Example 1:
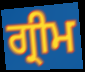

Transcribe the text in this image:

ਗ੍ਰੀਮ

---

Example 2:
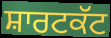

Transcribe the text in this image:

ਸ਼ਾਰਟਕੱਟ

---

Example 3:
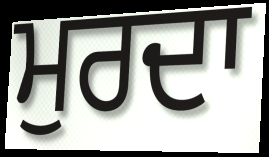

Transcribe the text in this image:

ਮੁਰਦਾ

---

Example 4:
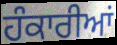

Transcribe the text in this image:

ਹੰਕਾਰੀਆਂ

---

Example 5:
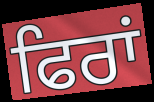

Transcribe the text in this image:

ਫਿਰਾਂ